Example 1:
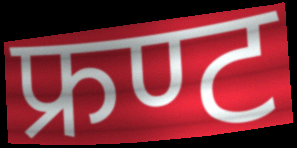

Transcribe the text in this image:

फ्रण्ट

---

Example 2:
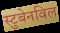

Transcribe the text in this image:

स्टुबेनविल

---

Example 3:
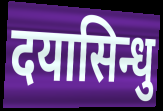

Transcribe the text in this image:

दयासिन्धु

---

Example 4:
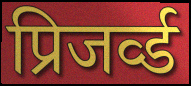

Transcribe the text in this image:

प्रिजर्व्ड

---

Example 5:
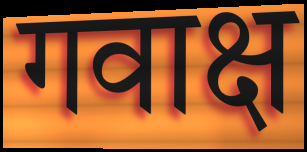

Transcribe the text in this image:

गवाक्ष